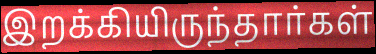
இறக்கியிருந்தார்கள்